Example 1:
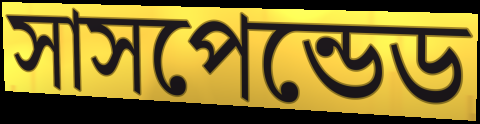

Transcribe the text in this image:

সাসপেন্ডেড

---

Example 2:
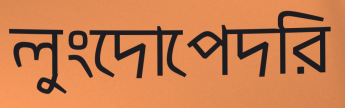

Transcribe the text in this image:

লুংদোপেদরি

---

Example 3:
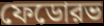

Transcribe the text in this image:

ফেডোরভ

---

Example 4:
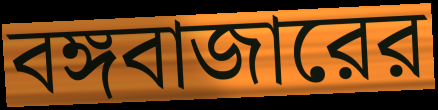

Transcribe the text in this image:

বঙ্গবাজারের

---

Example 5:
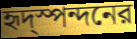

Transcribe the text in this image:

হৃদ্স্পন্দনের